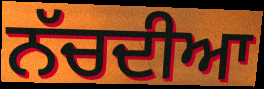
ਨੱਚਦੀਆ